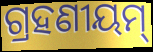
ଗ୍ରହଣୀୟମ୍